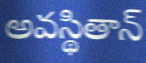
అవస్థితాన్